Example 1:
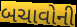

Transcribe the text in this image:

બચાવોની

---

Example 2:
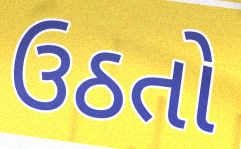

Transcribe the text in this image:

ઉઠતો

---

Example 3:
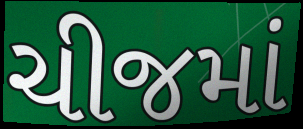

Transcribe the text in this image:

ચીજમાં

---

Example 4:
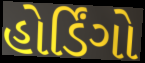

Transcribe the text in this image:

હોર્ડિંગો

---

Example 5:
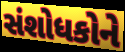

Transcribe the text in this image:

સંશોધકોને